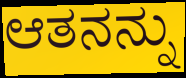
ಆತನನ್ನು